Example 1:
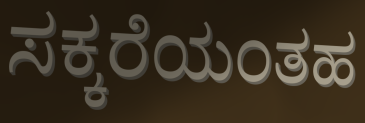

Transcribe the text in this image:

ಸಕ್ಕರೆಯಂತಹ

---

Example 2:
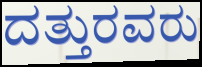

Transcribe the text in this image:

ದತ್ತುರವರು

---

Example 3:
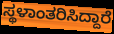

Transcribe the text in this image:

ಸ್ಥಳಾಂತರಿಸಿದ್ದಾರೆ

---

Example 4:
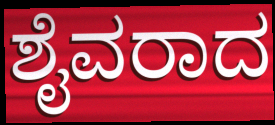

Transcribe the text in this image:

ಶೈವರಾದ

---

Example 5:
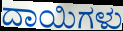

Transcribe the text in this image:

ದಾಯಿಗಳು